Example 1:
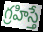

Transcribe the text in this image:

గ్రహిస్తే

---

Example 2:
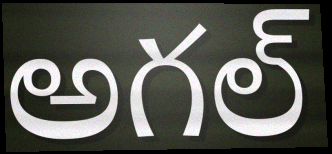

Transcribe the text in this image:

అగల్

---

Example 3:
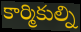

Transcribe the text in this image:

కార్మికుల్ని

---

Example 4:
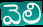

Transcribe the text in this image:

వెలి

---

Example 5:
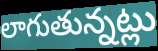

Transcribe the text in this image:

లాగుతున్నట్లు